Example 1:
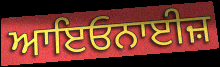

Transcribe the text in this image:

ਆਇਓਨਾਈਜ਼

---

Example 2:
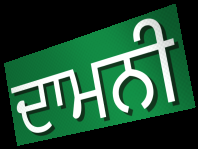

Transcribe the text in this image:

ਦਾਮਨੀ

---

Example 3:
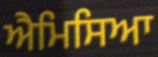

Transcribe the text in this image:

ਐਮਿਸਿਆ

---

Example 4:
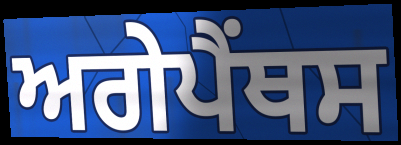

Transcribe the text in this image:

ਅਗੇਪੈਂਥਸ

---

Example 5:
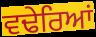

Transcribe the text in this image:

ਵਢੇਰਿਆਂ